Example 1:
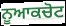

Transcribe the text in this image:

ਨੂਆਕਚੋਟ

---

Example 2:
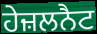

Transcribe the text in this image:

ਹੇਜ਼ਲਨੈਟ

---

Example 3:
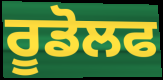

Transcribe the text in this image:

ਰੂਡੋਲਫ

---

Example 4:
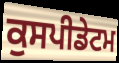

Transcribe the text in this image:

ਕੁਸਪੀਡੇਟਮ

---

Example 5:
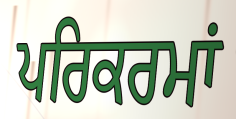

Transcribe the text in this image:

ਪਰਿਕਰਮਾਂ